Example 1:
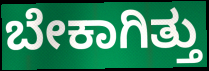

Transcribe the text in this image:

ಬೇಕಾಗಿತ್ತು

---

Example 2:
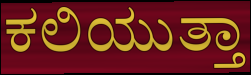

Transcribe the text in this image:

ಕಲಿಯುತ್ತಾ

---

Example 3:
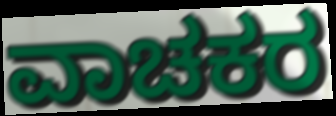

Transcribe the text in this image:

ವಾಚಕರ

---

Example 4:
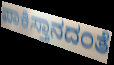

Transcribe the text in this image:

ಪಾಕಿಸ್ತಾನದಂತೆ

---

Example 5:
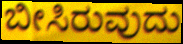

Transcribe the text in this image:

ಬೀಸಿರುವುದು